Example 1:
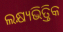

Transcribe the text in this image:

ଲକ୍ଷ୍ୟଭିତ୍ତିକ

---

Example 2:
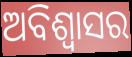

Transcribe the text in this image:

ଅବିଶ୍ବାସର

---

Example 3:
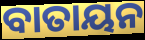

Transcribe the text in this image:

ବାତାୟନ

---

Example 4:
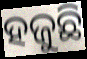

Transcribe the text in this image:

ହଜୁଛି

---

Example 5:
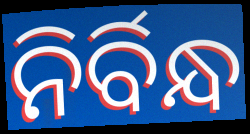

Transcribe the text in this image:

ନିର୍ବିନ୍ଧ